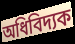
অধিবিদ্যক